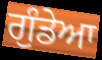
ਗੁੰਡੇਆ